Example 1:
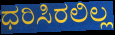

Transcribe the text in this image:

ಧರಿಸಿರಲಿಲ್ಲ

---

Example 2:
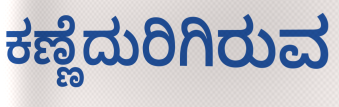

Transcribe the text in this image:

ಕಣ್ಣೆದುರಿಗಿರುವ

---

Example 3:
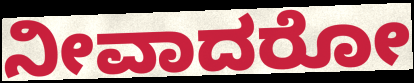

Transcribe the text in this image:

ನೀವಾದರೋ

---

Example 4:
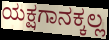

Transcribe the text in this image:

ಯಕ್ಷಗಾನಕ್ಕಲ್ಲ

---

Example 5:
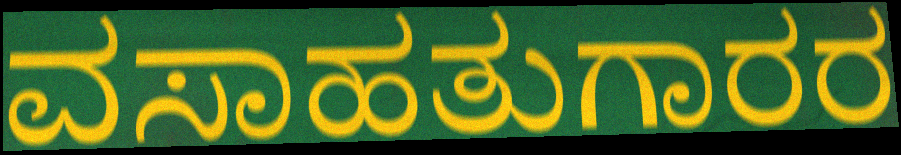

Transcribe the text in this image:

ವಸಾಹತುಗಾರರ